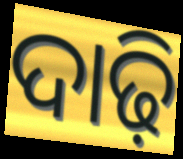
ଦାଢ଼ି